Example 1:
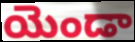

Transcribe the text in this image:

యెండా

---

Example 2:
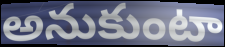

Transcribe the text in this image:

అనుకుంటా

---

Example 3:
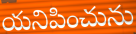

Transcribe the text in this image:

యనిపించును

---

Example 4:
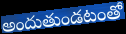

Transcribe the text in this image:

అందుతుండటంతో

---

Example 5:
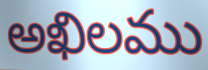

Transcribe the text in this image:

అఖిలము